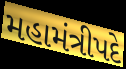
મહામંત્રીપદે